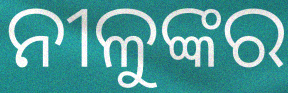
ନୀଳୁଙ୍କର